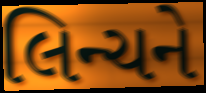
લિન્ચને